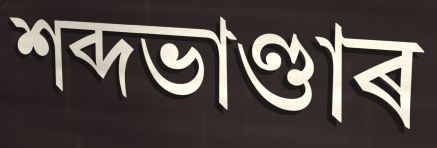
শব্দভাণ্ডাৰ